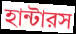
হান্টারস